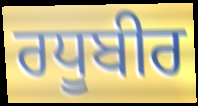
ਰਧੂਬੀਰ